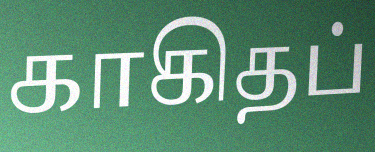
காகிதப்